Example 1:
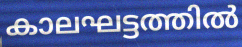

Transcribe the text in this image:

കാലഘട്ടത്തിൽ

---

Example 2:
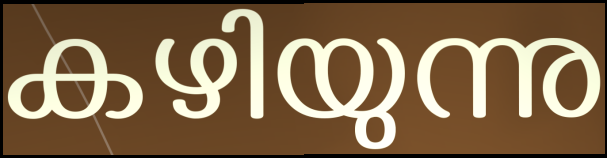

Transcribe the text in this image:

കഴിയുന്നു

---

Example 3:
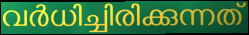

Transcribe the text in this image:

വർധിച്ചിരിക്കുന്നത്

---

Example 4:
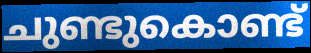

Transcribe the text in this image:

ചുണ്ടുകൊണ്ട്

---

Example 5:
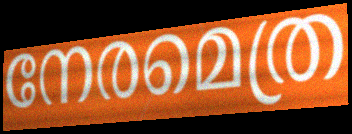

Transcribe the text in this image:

നേരമെത്ര